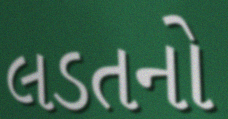
લડતનો